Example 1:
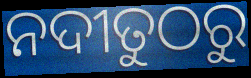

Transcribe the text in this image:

ନଦୀତୁଠରୁ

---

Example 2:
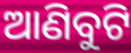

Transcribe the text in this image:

ଆଣିବୁଟି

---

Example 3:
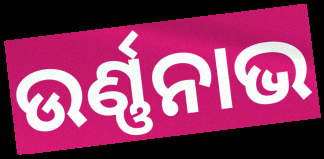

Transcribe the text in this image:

ଉର୍ଣ୍ଣନାଭ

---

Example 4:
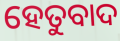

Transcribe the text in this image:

ହେତୁବାଦ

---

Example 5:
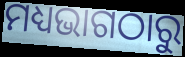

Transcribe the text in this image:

ମଧ୍ୟଭାଗଠାରୁ